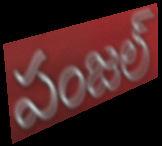
పంజల్